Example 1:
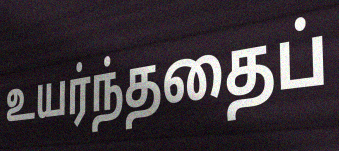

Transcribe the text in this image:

உயர்ந்ததைப்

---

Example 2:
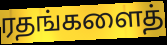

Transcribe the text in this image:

ரதங்களைத்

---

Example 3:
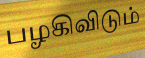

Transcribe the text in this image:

பழகிவிடும்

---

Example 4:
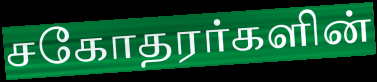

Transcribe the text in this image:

சகோதரர்களின்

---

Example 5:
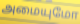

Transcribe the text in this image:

அமையுமோ